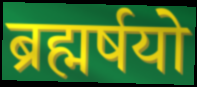
ब्रह्मर्षयो